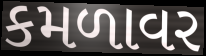
કમળાવર